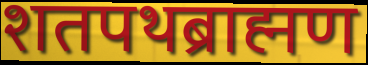
शतपथब्राह्मण